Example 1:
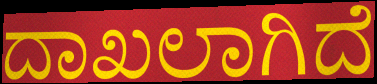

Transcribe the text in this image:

ದಾಖಲಾಗಿದೆ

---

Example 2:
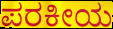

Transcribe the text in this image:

ಪರಕೀಯ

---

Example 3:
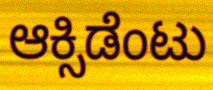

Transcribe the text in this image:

ಆಕ್ಸಿಡೆಂಟು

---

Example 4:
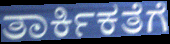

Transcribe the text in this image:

ತಾರ್ಕಿಕತೆಗೆ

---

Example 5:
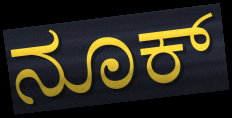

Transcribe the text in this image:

ನೂಕ್